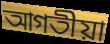
আগতীয়া